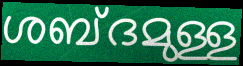
ശബ്ദമുള്ള